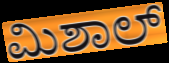
ಮಿಶಾಲ್